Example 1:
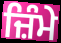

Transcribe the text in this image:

ਜ਼ਿੰਮੇ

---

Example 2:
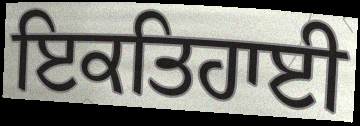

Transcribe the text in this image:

ਇਕਤਿਹਾਈ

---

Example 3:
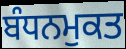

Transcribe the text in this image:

ਬੰਧਨਮੁਕਤ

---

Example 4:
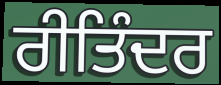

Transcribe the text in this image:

ਰੀਤਿੰਦਰ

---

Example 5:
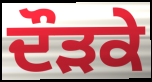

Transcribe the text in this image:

ਦੌੜਕੇ